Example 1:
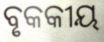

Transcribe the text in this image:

ବୃକକୀୟ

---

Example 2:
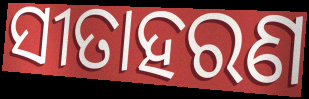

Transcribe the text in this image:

ସୀତାହରଣ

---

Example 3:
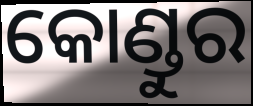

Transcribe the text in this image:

କୋଣ୍ଡୁର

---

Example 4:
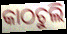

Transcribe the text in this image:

କାଠଚୁଲି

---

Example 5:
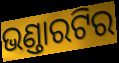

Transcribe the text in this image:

ଭଣ୍ଡାରଟିର